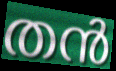
തൻ